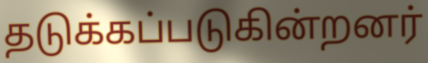
தடுக்கப்படுகின்றனர்